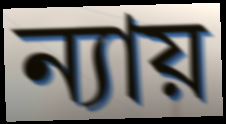
ন্যায়